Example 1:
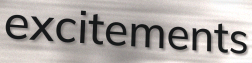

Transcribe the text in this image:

excitements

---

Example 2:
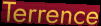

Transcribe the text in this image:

Terrence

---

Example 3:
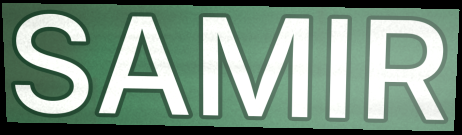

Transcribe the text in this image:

SAMIR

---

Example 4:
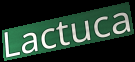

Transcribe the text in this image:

Lactuca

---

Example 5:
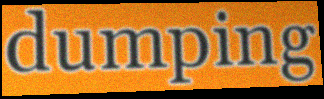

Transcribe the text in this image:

dumping